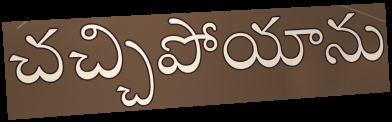
చచ్చిపోయాను